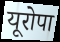
यूरोपा